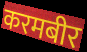
करमबीर